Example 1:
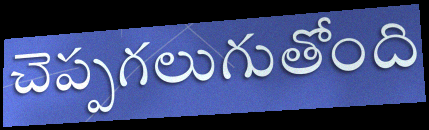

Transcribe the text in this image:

చెప్పగలుగుతోంది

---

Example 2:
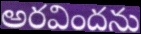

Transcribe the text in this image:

అరవిందను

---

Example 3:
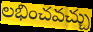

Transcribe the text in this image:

లభించవచ్చు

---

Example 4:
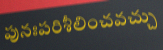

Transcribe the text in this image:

పునఃపరిశీలించవచ్చు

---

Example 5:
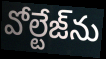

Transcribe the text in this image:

వోల్టేజ్‌ను